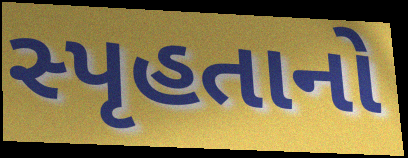
સ્પૃહતાનો